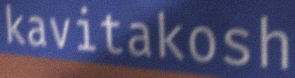
kavitakosh